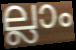
ല്ലാം